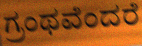
ಗ್ರಂಥವೆಂದರೆ